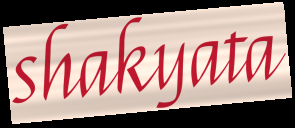
shakyata